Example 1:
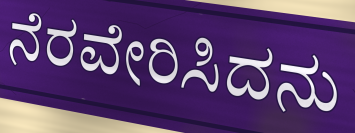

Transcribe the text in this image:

ನೆರವೇರಿಸಿದನು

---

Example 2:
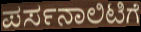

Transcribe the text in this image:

ಪರ್ಸನಾಲಿಟಿಗೆ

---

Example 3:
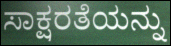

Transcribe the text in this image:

ಸಾಕ್ಷರತೆಯನ್ನು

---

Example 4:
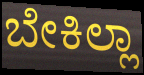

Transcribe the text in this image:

ಬೇಕಿಲ್ಲಾ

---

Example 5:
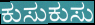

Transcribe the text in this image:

ಕುಸುಕುಸು